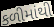
કળીમાંથી